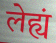
लेह्यं